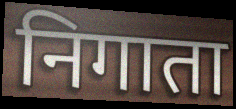
निगाता